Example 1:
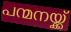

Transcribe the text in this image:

പന്മനയ്ക്ക്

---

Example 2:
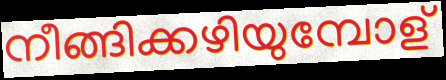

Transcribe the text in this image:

നീങ്ങിക്കഴിയുമ്പോള്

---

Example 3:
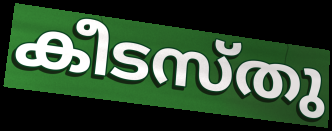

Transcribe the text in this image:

കീടസ്തു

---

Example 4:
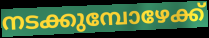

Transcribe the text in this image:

നടക്കുമ്പോഴേക്ക്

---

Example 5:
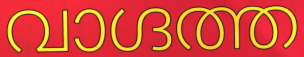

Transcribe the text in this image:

വാഗ്ദത്ത